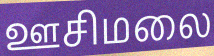
ஊசிமலை